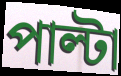
পাল্টা